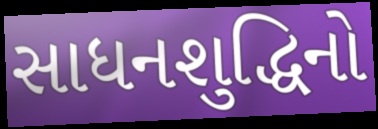
સાધનશુદ્ધિનો